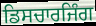
ਡਿਸਚਾਰਜਿੰਗ